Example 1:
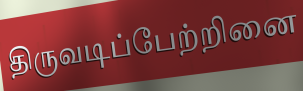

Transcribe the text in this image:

திருவடிப்பேற்றினை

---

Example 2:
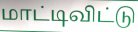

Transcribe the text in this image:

மாட்டிவிட்டு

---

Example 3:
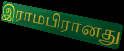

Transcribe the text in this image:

இராமபிரானது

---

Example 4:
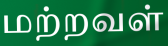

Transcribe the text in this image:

மற்றவள்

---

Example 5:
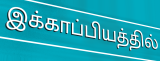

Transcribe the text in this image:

இக்காப்பியத்தில்